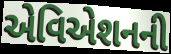
એવિએશનની